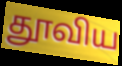
தூவிய